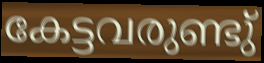
കേട്ടവരുണ്ടു്